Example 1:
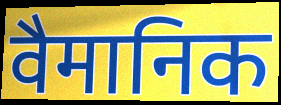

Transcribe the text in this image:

वैमानिक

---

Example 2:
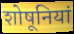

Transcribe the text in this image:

शोषूनियां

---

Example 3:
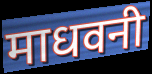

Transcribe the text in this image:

माधवनी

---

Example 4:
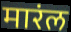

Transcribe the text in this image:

मारंल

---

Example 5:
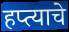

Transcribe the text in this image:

हप्त्याचे